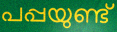
പപ്പയുണ്ട്